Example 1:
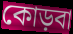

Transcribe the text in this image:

কোড়বা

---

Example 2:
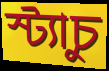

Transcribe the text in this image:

স্ট্যাচু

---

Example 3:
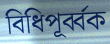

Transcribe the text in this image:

বিধিপূর্ব্বক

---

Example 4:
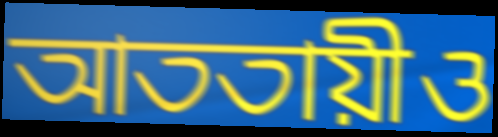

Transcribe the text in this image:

আততায়ীও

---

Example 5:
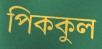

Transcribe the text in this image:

পিককুল